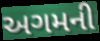
અગમની